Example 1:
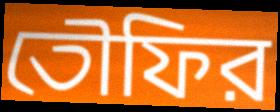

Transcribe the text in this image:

তৌফির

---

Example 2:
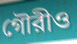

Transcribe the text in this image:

গৌরীও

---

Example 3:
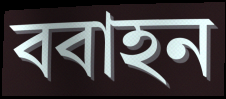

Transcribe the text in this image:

ববাহন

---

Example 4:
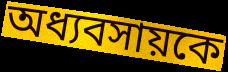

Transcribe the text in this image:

অধ্যবসায়কে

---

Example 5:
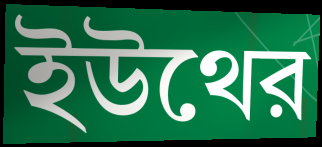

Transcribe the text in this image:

ইউথের